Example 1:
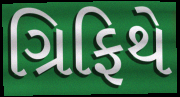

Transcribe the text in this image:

ગ્રિફિથે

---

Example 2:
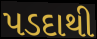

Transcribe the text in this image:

પડદાથી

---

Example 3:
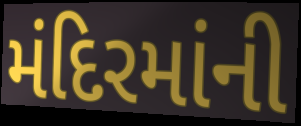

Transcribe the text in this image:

મંદિરમાંની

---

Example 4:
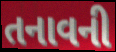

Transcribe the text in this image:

તનાવની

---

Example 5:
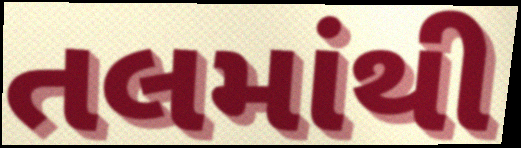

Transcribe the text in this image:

તલમાંથી